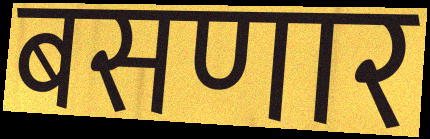
बसणार